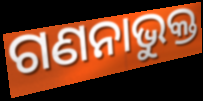
ଗଣନାଭୁକ୍ତ